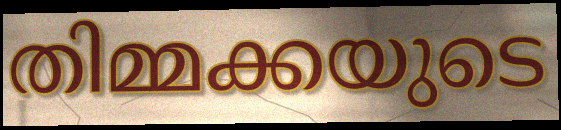
തിമ്മക്കയുടെ